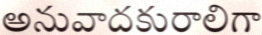
అనువాదకురాలిగా